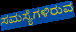
ಸಮಸ್ಯೆಗಳಿರುವ